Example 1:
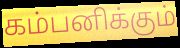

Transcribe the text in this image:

கம்பனிக்கும்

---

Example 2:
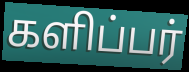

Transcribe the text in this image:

களிப்பர்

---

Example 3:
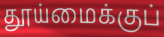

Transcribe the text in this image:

தூய்மைக்குப்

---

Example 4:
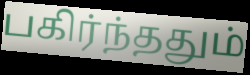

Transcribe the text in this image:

பகிர்ந்ததும்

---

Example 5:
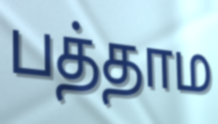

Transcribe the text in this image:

பத்தாம